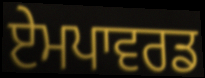
ਏਮਪਾਵਰਡ